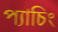
প্যাচিং